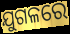
ଯୁଗଳରେ